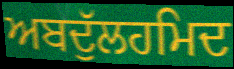
ਅਬਦੁੱਲਹਮਿਦ